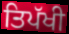
ਤਿਪੱਖੀ